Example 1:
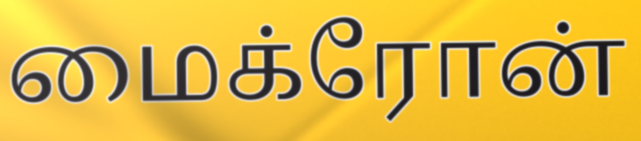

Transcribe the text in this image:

மைக்ரோன்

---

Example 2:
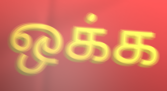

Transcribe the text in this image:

ஒக்க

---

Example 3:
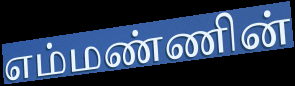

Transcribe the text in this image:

எம்மண்ணின்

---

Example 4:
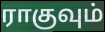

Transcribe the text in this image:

ராகுவும்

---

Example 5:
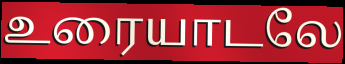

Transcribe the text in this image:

உரையாடலே